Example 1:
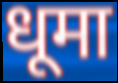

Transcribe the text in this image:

धूमा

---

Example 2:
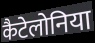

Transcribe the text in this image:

कैटेलोनिया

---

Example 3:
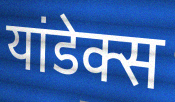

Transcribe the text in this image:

यांडेक्स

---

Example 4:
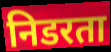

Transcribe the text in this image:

निडरता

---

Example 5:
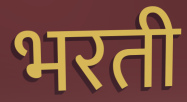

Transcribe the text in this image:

भरती